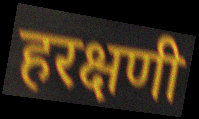
हरक्षणी